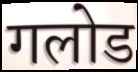
गलोड